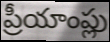
ప్రీయాంప్లు